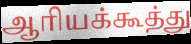
ஆரியக்கூத்து